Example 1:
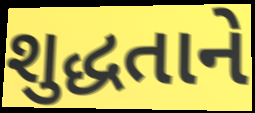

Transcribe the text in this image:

શુદ્ધતાને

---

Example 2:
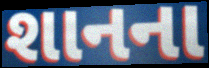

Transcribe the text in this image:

શાનના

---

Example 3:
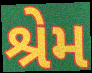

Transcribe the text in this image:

શ્રેમ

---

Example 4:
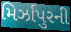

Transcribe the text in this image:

મિર્ઝાપુરની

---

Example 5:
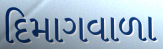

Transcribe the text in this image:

દિમાગવાળા